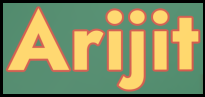
Arijit